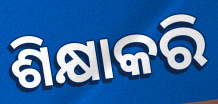
ଶିକ୍ଷାକରି